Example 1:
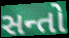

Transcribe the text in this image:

સન્તો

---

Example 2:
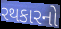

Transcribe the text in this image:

રથકારનો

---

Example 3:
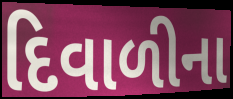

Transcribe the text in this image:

દિવાળીના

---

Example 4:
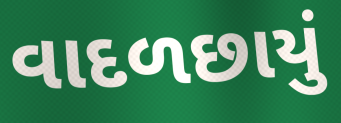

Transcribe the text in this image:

વાદળછાયું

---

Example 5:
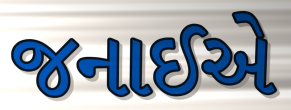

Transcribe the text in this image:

જનાઈએ